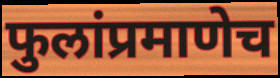
फुलांप्रमाणेच